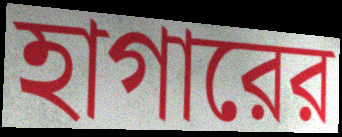
হাগারের